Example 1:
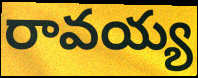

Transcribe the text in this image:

రావయ్య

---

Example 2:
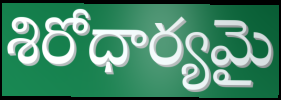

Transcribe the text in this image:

శిరోధార్యమై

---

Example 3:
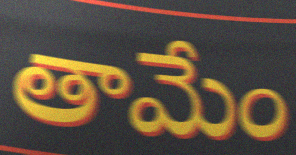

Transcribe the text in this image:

తామేం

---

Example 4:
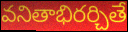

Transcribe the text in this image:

వనితాభిరర్చితే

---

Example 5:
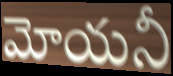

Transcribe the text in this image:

మోయనీ